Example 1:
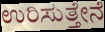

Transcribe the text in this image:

ಉರಿಸುತ್ತೇನೆ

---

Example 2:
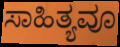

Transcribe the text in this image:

ಸಾಹಿತ್ಯವೂ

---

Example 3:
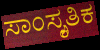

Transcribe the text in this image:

ಸಾಂಸ್ಕೃತಿಕ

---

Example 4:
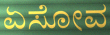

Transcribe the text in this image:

ಏಸೋವ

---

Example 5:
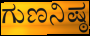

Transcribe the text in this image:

ಗುಣನಿಷ್ಠ